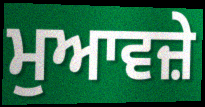
ਮੁਆਵਜ਼ੇ